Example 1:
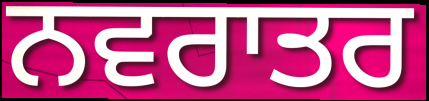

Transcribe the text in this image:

ਨਵਰਾਤਰ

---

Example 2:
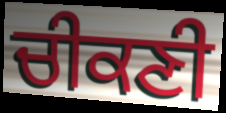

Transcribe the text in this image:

ਚੀਕਣੀ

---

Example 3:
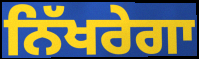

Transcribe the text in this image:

ਨਿੱਖਰੇਗਾ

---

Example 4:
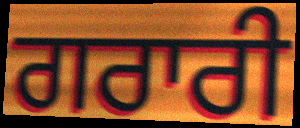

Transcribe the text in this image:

ਗਰਾਰੀ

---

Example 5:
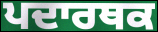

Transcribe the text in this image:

ਪਦਾਰਥਕ